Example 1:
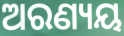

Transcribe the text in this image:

ଅରଣ୍ୟୟ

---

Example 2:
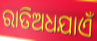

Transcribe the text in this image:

ରାତିଅଧଯାଏଁ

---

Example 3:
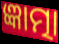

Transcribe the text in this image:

ଜ୍ଞାତ୍ମା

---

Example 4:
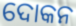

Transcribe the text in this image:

ଦୋକନ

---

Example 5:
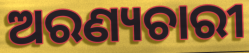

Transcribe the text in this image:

ଅରଣ୍ୟଚାରୀ